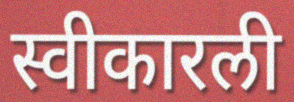
स्वीकारली